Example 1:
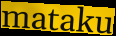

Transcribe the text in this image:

mataku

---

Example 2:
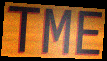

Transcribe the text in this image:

TME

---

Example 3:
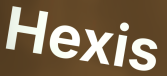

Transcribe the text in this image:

Hexis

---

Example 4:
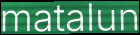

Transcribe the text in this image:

matalun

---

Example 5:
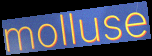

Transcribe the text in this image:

molluse